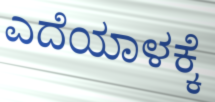
ಎದೆಯಾಳಕ್ಕೆ